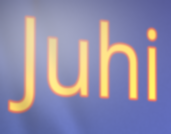
Juhi